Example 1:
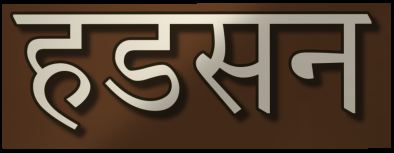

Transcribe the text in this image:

हडसन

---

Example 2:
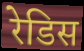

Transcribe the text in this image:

रेडिस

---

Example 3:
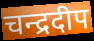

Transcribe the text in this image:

चन्द्रदीप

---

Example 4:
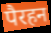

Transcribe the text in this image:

पैरहन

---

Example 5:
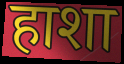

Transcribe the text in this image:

हाशा